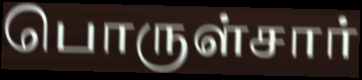
பொருள்சார்